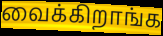
வைக்கிறாங்க